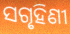
ସଗୃହିଣୀ